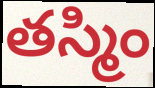
తస్మిం